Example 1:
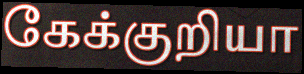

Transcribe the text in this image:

கேக்குறியா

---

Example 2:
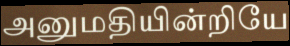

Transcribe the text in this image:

அனுமதியின்றியே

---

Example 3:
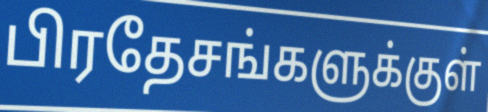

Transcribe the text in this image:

பிரதேசங்களுக்குள்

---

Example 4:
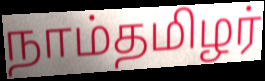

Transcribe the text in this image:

நாம்தமிழர்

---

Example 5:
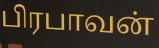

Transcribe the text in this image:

பிரபாவன்